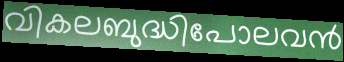
വികലബുദ്ധിപോലവൻ